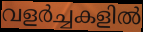
വളർച്ചകളിൽ